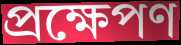
প্রক্ষেপণ